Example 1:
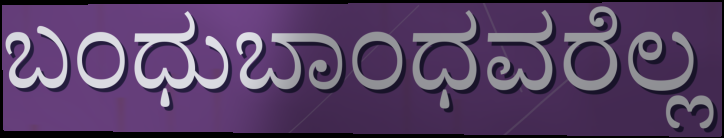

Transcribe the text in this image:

ಬಂಧುಬಾಂಧವರೆಲ್ಲ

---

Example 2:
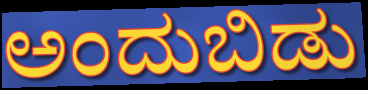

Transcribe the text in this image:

ಅಂದುಬಿಡು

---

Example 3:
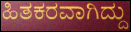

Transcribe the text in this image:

ಹಿತಕರವಾಗಿದ್ದು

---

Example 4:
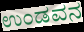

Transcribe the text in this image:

ಉಂಡವನ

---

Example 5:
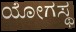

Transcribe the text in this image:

ಯೋಗಸ್ಥ